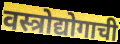
वस्त्रोद्योगाची